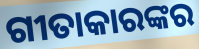
ଗୀତାକାରଙ୍କର